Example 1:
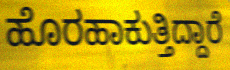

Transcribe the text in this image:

ಹೊರಹಾಕುತ್ತಿದ್ದಾರೆ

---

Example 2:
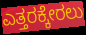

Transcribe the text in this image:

ಎತ್ತರಕ್ಕೇರಲು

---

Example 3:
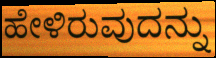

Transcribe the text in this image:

ಹೇಳಿರುವುದನ್ನು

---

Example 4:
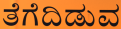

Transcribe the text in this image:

ತೆಗೆದಿಡುವ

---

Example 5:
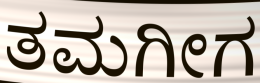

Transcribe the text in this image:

ತಮಗೀಗ